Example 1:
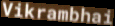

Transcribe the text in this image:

Vikrambhai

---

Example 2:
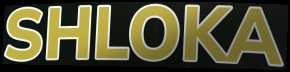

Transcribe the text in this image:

SHLOKA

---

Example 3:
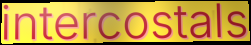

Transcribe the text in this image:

intercostals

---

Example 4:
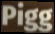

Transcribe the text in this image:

Pigg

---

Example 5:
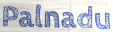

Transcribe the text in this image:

Palnadu